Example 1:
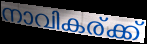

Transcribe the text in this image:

നാവികര്ക്ക്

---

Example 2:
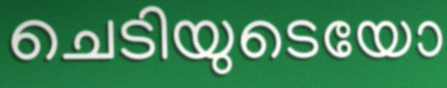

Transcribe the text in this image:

ചെടിയുടെയോ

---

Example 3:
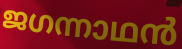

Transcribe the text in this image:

ജഗന്നാഥൻ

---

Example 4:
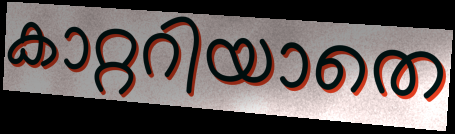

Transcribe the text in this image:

കാറ്ററിയാതെ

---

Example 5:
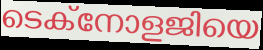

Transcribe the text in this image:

ടെക്‌നോളജിയെ